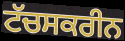
ਟੱਚਸਕਰੀਨ